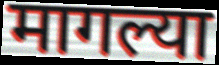
मागल्या